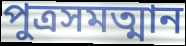
পুত্রসমত্মান